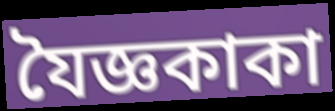
যৈজ্ঞকাকা